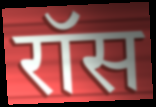
रॉस